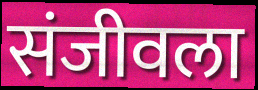
संजीवला